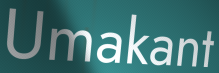
Umakant